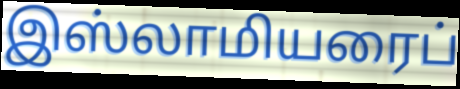
இஸ்லாமியரைப்